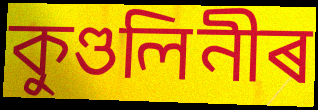
কুণ্ডলিনীৰ